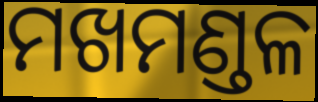
ମଖମଣ୍ଡଳ